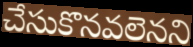
చేసుకొనవలెనని